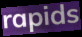
rapids